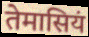
तेमासियं